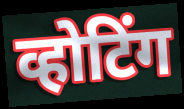
व्होटिंग